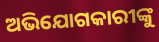
ଅଭିଯୋଗକାରୀଙ୍କୁ